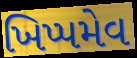
ખિપ્પમેવ